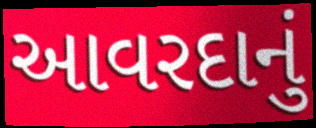
આવરદાનું